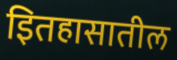
इितहासातील